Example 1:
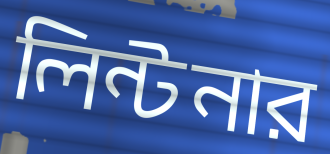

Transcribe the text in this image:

লিন্টনার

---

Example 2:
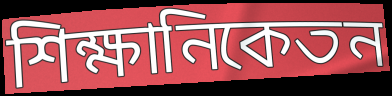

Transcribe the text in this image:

শিক্ষানিকেতন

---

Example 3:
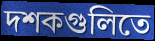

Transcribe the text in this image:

দশকগুলিতে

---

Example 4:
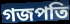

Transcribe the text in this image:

গজপতি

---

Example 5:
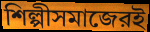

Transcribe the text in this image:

শিল্পীসমাজেরই